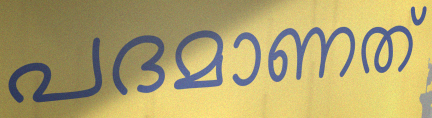
പദമാണത്